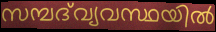
സമ്പദ്‌വ്യവസ്ഥയിൽ